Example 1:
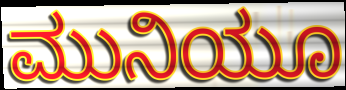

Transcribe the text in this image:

ಮುನಿಯೂ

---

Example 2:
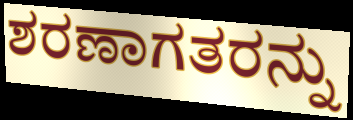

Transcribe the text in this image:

ಶರಣಾಗತರನ್ನು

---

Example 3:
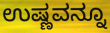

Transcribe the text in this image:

ಉಷ್ಣವನ್ನೂ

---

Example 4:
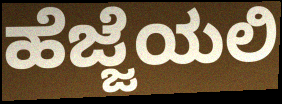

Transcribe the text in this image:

ಹೆಜ್ಜೆಯಲಿ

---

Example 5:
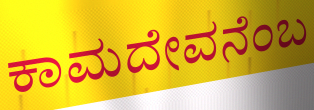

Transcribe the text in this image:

ಕಾಮದೇವನೆಂಬ